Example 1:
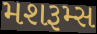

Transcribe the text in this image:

મશરૂમ્સ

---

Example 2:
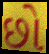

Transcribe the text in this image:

છો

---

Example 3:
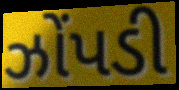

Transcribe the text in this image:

ઝોંપડી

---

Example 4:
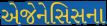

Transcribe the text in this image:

એજેનેસિસના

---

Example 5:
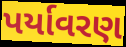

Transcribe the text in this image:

પર્યાવરણ